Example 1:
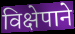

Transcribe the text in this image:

विक्षेपाने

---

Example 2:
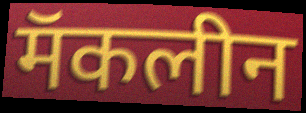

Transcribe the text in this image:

मॅकलीन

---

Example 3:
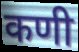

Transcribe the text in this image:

कणी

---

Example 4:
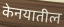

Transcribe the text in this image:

केनयातील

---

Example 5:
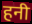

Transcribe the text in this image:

हनी